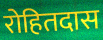
रोहितदास